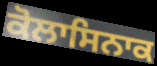
ਕੋਲਾਸਿਨਾਕ